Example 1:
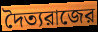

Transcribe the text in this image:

দৈত্যরাজের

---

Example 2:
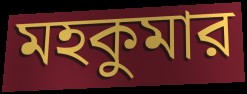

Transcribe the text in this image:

মহকুমার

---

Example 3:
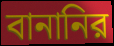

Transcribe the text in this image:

বানানির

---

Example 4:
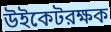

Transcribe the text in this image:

উইকেটরক্ষক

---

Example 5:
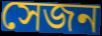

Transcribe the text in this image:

সেজন